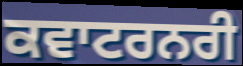
ਕਵਾਟਰਨਰੀ